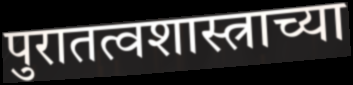
पुरातत्वशास्त्राच्या